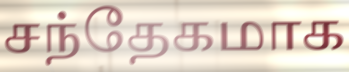
சந்தேகமாக